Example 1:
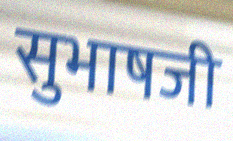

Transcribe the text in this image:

सुभाषजी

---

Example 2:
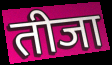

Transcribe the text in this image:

तीजा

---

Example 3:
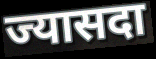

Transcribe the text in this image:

ज्यासदा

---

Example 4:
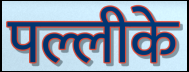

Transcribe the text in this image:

पल्लीके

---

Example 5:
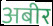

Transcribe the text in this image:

अबीर